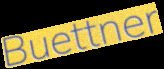
Buettner